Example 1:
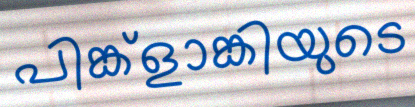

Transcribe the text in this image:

പിങ്ക്ളാങ്കിയുടെ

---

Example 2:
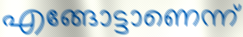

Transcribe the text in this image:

എങ്ങോട്ടാണെന്ന്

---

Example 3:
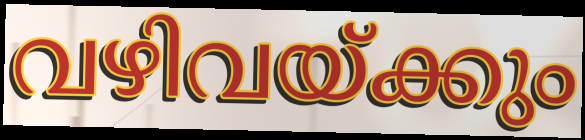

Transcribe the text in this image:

വഴിവയ്ക്കും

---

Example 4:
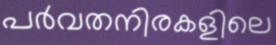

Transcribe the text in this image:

പർവതനിരകളിലെ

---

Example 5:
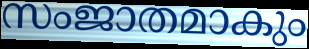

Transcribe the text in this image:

സംജാതമാകും